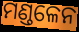
ମଣ୍ଡଳେନ